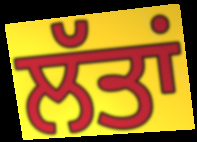
ਲੱਤਾਂ